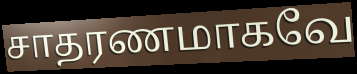
சாதரணமாகவே